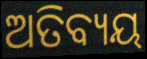
ଅତିବ୍ୟୟ